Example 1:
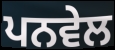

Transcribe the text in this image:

ਪਨਵੇਲ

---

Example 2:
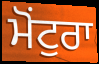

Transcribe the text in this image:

ਮੋਂਟੁਰਾ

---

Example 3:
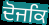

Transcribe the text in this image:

ਦੋਜਕਿ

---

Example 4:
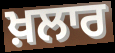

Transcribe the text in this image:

ਖ਼ਲਾਰ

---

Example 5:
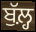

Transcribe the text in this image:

ਬੁੱਲ਼੍ਹ